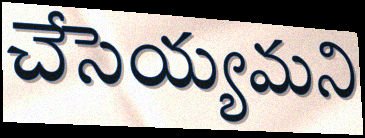
చేసెయ్యమని